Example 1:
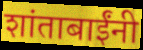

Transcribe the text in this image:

शांताबाईंनी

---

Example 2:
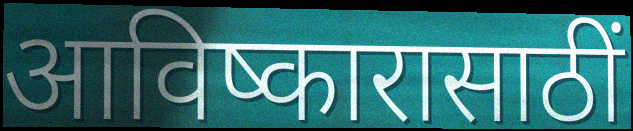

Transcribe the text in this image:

आविष्कारासाठीं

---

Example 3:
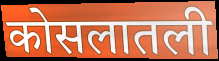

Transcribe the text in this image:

कोसलातली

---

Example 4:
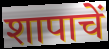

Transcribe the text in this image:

शापाचें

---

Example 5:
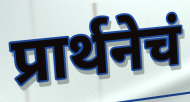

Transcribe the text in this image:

प्रार्थनेचं